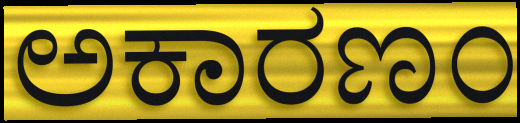
ಅಕಾರಣಂ